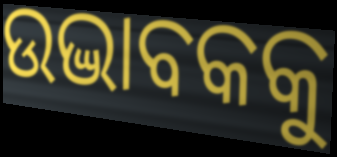
ଉଦ୍ଭାବକକୁ